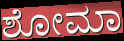
ಶೋಮಾ